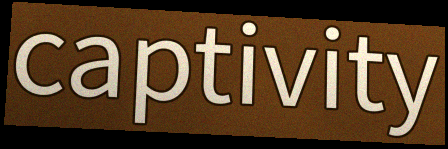
captivity